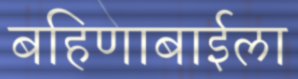
बहिणाबाईला